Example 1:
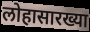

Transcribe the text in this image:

लोहासारख्या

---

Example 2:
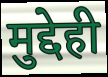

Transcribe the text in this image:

मुद्देही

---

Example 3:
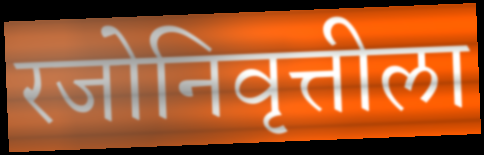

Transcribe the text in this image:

रजोनिवृत्तीला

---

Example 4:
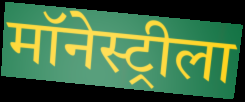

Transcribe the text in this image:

मॉनेस्ट्रीला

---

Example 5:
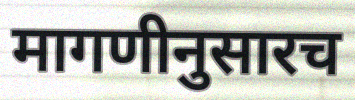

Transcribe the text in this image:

मागणीनुसारच